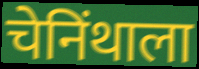
चेनिंथाला